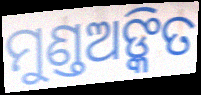
ମୁଣ୍ଡଅଙ୍କିତ